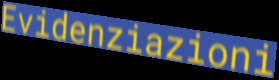
Evidenziazioni